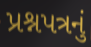
પ્રશ્નપત્રનું